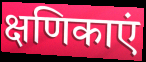
क्षणिकाएं